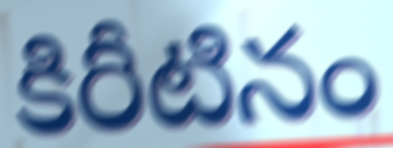
కిరీటినం